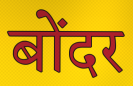
बोंदर